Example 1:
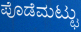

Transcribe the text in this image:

ಪೊಡೆಮಟ್ಟು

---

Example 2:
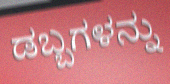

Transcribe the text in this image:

ಡಬ್ಬಗಳನ್ನು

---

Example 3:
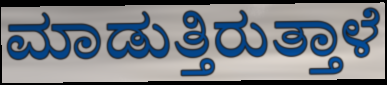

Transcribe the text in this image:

ಮಾಡುತ್ತಿರುತ್ತಾಳೆ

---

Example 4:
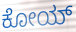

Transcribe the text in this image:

ಕೋಯ್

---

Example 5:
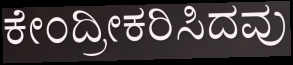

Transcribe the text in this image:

ಕೇಂದ್ರೀಕರಿಸಿದವು